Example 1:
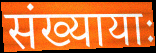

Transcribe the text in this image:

संख्यायाः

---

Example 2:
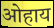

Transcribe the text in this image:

ओहाय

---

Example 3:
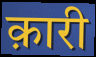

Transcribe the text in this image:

क़ारी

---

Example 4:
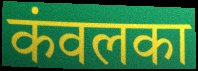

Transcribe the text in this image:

कंवलका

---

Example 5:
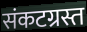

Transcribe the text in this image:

संकटग्रस्त